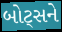
બોટ્સને